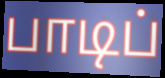
பாடிப்